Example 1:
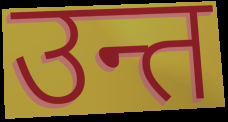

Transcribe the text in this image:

उन्त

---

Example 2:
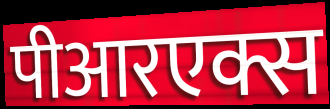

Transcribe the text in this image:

पीआरएक्स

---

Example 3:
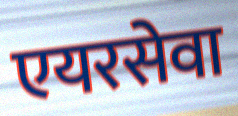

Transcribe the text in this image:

एयरसेवा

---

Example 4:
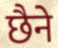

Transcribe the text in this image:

छैने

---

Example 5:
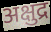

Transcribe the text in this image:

अक्षुद्र